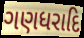
ગણધરાદિ